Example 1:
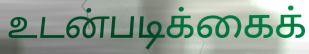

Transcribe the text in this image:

உடன்படிக்கைக்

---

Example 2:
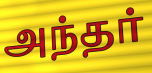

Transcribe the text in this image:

அந்தர்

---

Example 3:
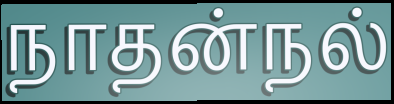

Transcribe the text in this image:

நாதன்நல்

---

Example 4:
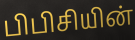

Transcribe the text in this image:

பிபிசியின்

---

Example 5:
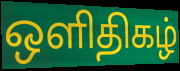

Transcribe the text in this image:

ஒளிதிகழ்